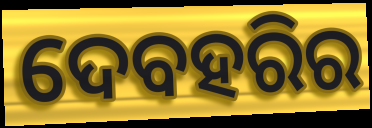
ଦେବହରିର